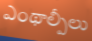
ఎంథాల్పీలు